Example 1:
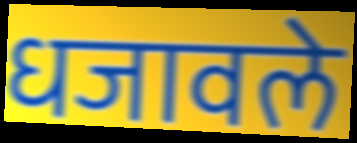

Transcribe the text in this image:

धजावले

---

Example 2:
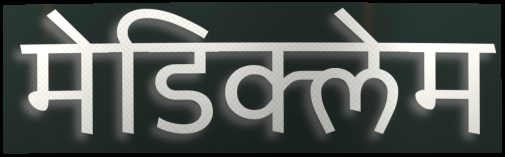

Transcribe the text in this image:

मेडिक्लेम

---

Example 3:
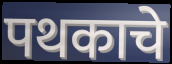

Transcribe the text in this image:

पथकाचे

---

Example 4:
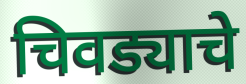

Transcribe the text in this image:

चिवड्याचे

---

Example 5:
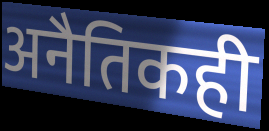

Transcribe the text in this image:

अनैतिकही